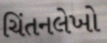
ચિંતનલેખો